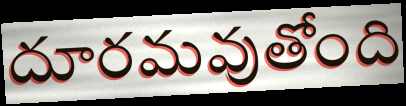
దూరమవుతోంది